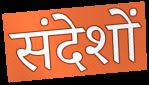
संदेशों